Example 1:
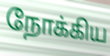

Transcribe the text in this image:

நோக்கிய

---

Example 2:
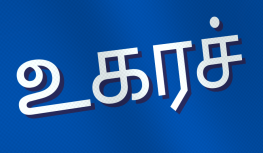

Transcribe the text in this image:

உகரச்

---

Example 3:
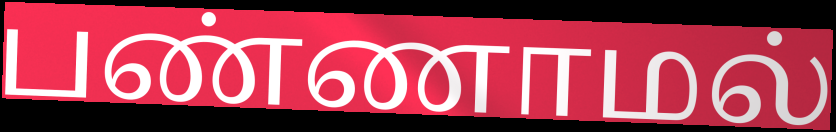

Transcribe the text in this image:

பண்ணாமல்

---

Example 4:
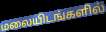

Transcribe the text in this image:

மலையிடங்களில்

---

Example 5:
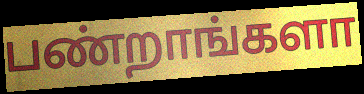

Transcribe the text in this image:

பண்றாங்களா